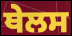
ਥੇਲਸ